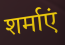
शर्माएं